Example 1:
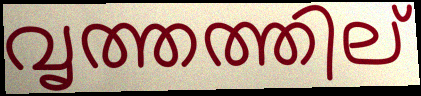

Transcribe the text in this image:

വൃത്തത്തില്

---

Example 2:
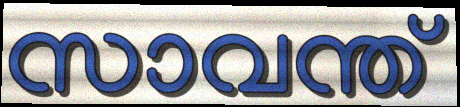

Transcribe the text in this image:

സാവന്ത്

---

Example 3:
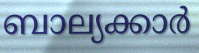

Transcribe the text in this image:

ബാല്യക്കാർ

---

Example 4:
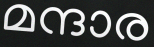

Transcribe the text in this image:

മന്ദാര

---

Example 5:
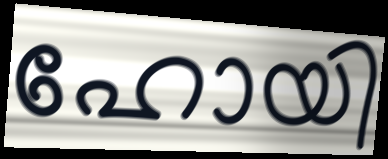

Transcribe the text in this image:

ഹോയി